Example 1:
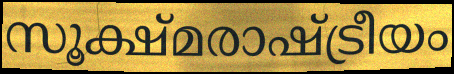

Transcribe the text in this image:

സൂക്ഷ്മരാഷ്ട്രീയം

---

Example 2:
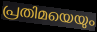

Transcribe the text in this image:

പ്രതിമയെയും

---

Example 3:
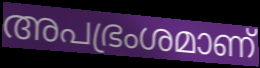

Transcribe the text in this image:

അപഭ്രംശമാണ്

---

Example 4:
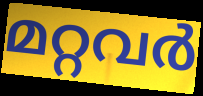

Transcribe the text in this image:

മറ്റവർ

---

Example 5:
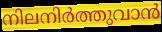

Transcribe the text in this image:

നിലനിർത്തുവാൻ